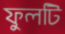
ফুলটি